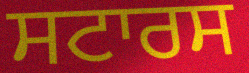
ਸਟਾਰਸ